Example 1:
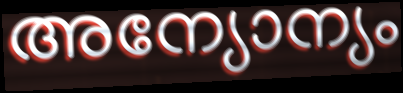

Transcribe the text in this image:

അന്യോന്യം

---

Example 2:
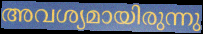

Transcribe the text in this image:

അവശ്യമായിരുന്നു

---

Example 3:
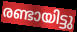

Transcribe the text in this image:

രണ്ടായിട്ടു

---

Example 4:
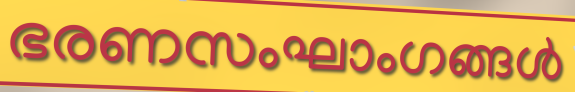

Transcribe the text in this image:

ഭരണസംഘാംഗങ്ങൾ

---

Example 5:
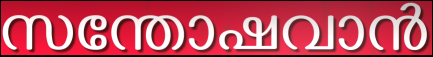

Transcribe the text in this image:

സന്തോഷവാൻ